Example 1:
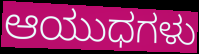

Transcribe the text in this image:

ಆಯುಧಗಳು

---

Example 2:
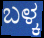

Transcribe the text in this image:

ಬಳ್ಕ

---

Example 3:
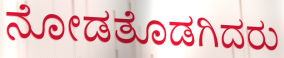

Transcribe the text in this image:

ನೋಡತೊಡಗಿದರು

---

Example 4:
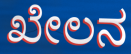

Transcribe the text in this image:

ಖೇಲನ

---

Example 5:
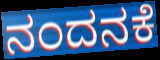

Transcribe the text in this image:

ನಂದನಕೆ